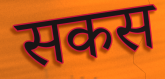
सकस